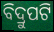
ବିଦ୍ରୁପଟି